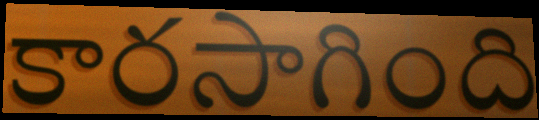
కారసాగింది